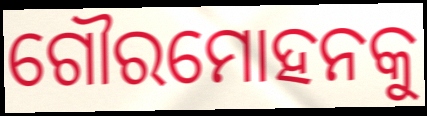
ଗୌରମୋହନକୁ